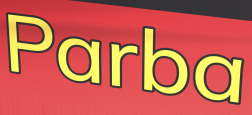
Parba